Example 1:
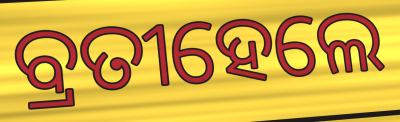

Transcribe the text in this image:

ବ୍ରତୀହେଲେ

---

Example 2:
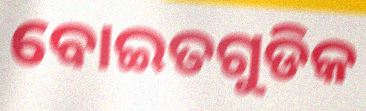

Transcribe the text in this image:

ବୋଇତଗୁଡିକ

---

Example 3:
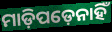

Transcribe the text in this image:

ମାଡ଼ିପଡ଼େନାହିଁ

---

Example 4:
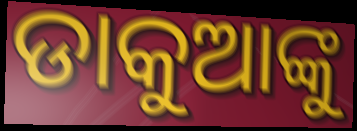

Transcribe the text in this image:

ଡାକୁଆଙ୍କୁ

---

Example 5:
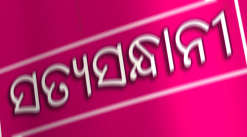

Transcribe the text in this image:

ସତ୍ୟସନ୍ଧାନୀ